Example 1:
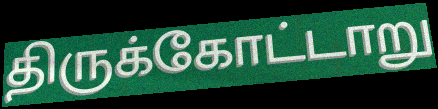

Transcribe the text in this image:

திருக்கோட்டாறு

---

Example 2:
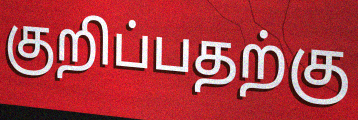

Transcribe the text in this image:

குறிப்பதற்கு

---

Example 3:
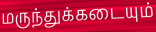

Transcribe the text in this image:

மருந்துக்கடையும்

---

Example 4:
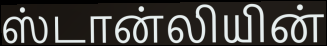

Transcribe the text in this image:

ஸ்டான்லியின்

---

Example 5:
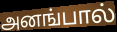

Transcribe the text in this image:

அனங்பால்